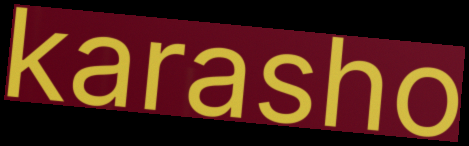
karasho